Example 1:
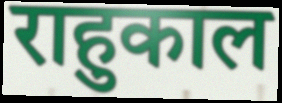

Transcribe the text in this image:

राहुकाल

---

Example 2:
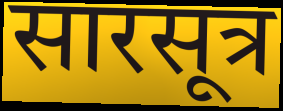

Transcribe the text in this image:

सारसूत्र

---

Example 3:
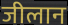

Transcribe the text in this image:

जीलान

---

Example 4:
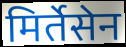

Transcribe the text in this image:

मिर्तेसेन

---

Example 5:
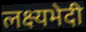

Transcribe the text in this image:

लक्ष्यभेदी